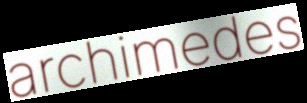
archimedes